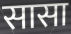
सासा